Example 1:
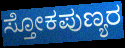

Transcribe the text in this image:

ಸ್ತೋಕಪುಣ್ಯರ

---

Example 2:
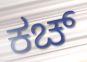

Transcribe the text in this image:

ಕಚ್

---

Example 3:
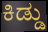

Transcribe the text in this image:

ಕಿಡ್ಡು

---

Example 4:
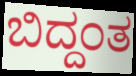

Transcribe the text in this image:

ಬಿದ್ದಂತ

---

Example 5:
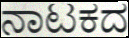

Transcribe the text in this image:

ನಾಟಕದ